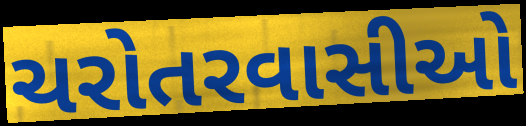
ચરોતરવાસીઓ